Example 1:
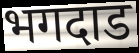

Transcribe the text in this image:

भगदाड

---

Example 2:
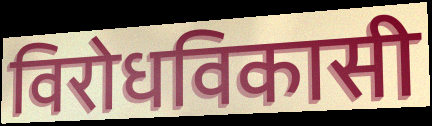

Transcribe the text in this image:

विरोधविकासी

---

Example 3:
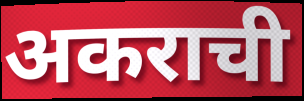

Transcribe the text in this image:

अकराची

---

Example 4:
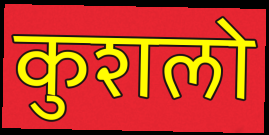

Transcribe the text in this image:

कुशलो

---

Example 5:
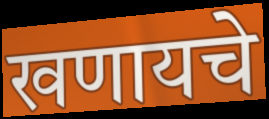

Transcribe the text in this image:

खणायचे